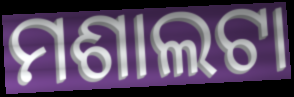
ମଶାଲଟା